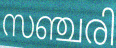
സഞ്ചരി